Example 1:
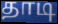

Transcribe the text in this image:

தாடி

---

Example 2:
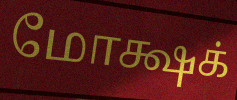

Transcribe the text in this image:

மோக்ஷக்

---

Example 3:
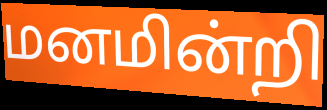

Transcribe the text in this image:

மனமின்றி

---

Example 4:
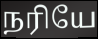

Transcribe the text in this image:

நரியே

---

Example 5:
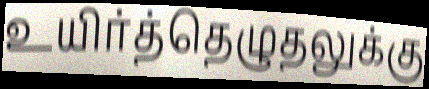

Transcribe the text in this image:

உயிர்த்தெழுதலுக்கு